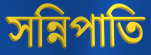
সন্নিপাতি